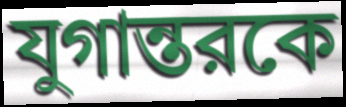
যুগান্তরকে